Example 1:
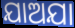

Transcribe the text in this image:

ଯାଅଯା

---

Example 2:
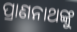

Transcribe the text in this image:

ପ୍ରାଣନାଥଙ୍କୁ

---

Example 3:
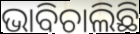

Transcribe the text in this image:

ଭାବିଚାଲିଛି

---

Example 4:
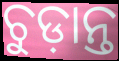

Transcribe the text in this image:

ଚୁଡ଼ାନ୍ତ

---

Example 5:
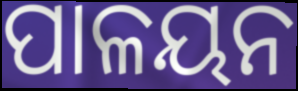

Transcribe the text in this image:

ପାଳୟନ